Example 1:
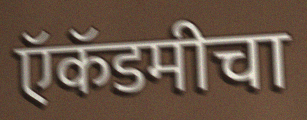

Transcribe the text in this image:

ऍकॅडमीचा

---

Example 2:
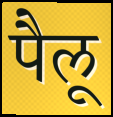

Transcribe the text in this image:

पैलू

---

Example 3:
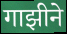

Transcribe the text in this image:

गाझीने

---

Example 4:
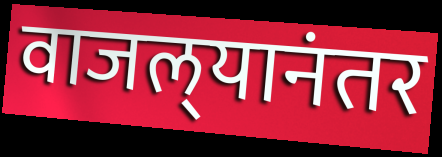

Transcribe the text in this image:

वाजल्यानंतर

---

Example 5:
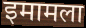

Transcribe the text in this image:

इमामला